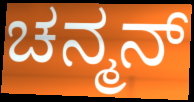
ಚನ್ಮನ್